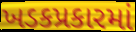
ખડકપ્રકારમાં